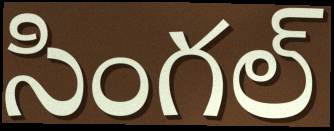
సింగల్